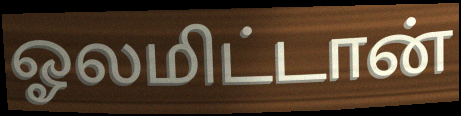
ஓலமிட்டான்